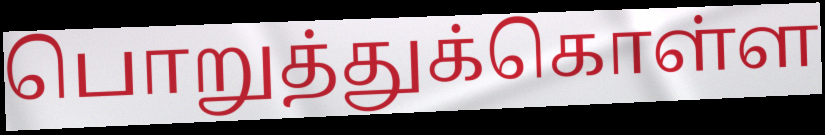
பொறுத்துக்கொள்ள